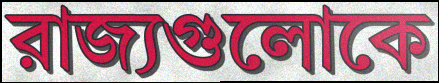
রাজ্যগুলোকে